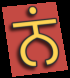
ਨਂ